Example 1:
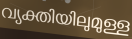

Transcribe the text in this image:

വ്യക്തിയിലുമുള്ള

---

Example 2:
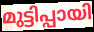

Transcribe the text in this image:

മുട്ടിപ്പായി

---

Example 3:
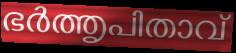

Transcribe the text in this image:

ഭർത്തൃപിതാവ്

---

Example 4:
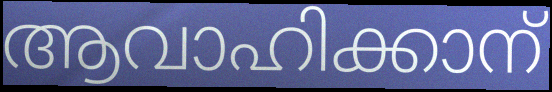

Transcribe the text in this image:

ആവാഹിക്കാന്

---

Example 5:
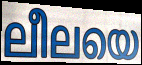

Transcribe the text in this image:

ലീലയെ